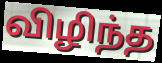
விழிந்த